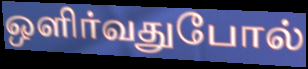
ஒளிர்வதுபோல்